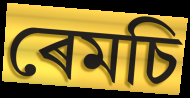
ৰেমচি